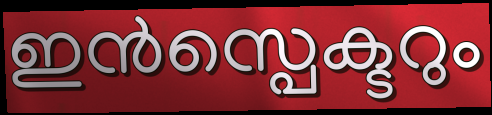
ഇൻസ്പെക്ടറും